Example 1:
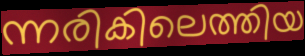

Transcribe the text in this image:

ന്നരികിലെത്തിയ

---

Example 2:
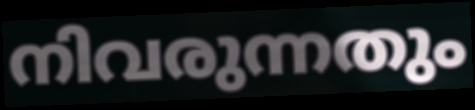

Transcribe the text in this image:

നിവരുന്നതും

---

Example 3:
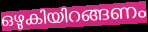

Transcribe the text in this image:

ഒഴുകിയിറങ്ങണം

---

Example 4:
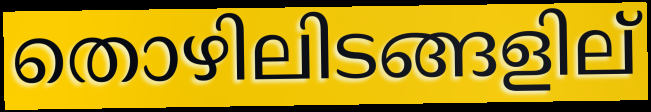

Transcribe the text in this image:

തൊഴിലിടങ്ങളില്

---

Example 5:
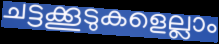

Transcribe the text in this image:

ചട്ടക്കൂടുകളെല്ലാം